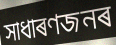
সাধাৰণজনৰ